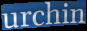
urchin